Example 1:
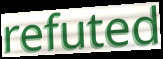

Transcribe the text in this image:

refuted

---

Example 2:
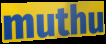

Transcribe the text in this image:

muthu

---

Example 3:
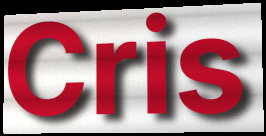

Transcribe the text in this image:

Cris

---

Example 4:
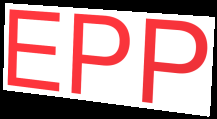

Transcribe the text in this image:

EPP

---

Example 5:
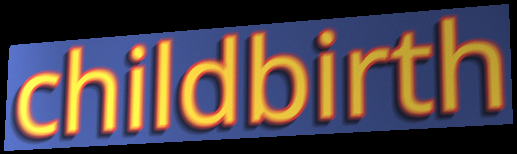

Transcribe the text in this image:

childbirth